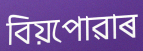
বিয়পোৱাৰ